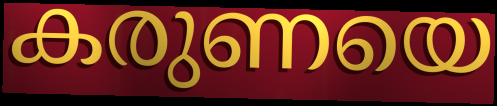
കരുണയെ